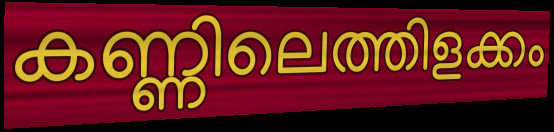
കണ്ണിലെത്തിളക്കം